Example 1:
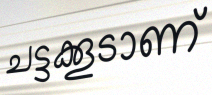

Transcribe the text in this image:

ചട്ടക്കൂടാണ്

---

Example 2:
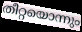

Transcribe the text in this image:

തീറ്റയൊന്നും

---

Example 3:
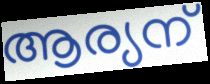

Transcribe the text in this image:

ആര്യന്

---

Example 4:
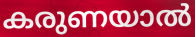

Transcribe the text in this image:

കരുണയാൽ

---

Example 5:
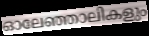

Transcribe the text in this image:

ഓലേഞ്ഞാലികളും